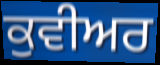
ਕੁਵੀਅਰ